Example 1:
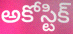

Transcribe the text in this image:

అకోస్టిక్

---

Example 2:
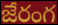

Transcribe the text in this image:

జేరంగ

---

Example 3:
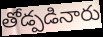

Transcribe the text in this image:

తోడ్పడినారు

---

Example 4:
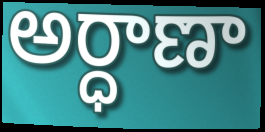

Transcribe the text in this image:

అర్ధాణా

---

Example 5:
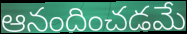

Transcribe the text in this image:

ఆనందించడమే